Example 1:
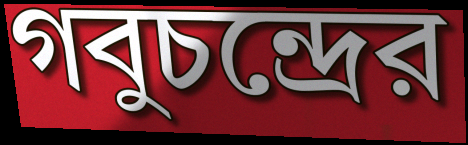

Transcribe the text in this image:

গবুচন্দ্রের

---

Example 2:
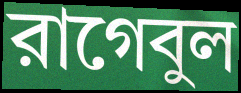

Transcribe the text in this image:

রাগেবুল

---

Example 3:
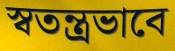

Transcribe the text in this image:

স্বতন্ত্রভাবে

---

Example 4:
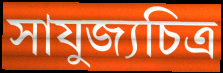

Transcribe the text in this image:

সাযুজ্যচিত্র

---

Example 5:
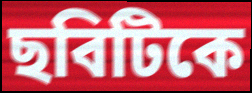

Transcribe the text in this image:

ছবিটিকে